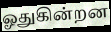
ஓதுகின்றன